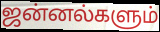
ஜன்னல்களும்